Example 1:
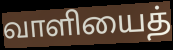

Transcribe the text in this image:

வாளியைத்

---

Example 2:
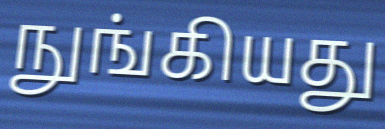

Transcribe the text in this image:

நுங்கியது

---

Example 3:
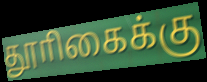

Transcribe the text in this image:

தூரிகைக்கு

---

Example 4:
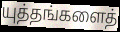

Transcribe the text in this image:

யுத்தங்களைத்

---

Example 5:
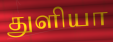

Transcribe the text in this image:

துளியா